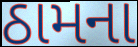
ઠામના